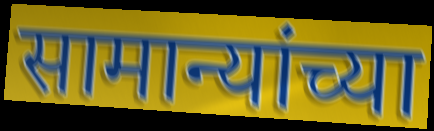
सामान्यांच्या